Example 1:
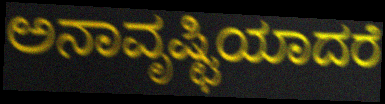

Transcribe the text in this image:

ಅನಾವೃಷ್ಟಿಯಾದರೆ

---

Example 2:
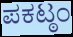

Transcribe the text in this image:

ಪಕಟ್ಠಂ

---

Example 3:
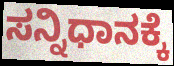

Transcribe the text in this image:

ಸನ್ನಿಧಾನಕ್ಕೆ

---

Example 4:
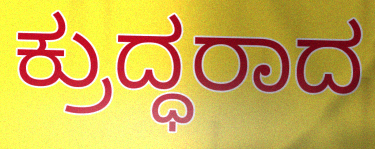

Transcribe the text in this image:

ಕ್ರುದ್ಧರಾದ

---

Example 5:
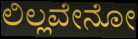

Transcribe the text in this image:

ಲಿಲ್ಲವೇನೋ